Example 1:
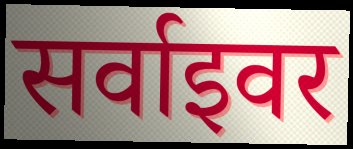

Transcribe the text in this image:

सर्वाइवर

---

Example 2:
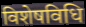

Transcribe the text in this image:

विशेषविधि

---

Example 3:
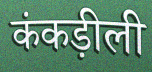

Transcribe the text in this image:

कंकड़ीली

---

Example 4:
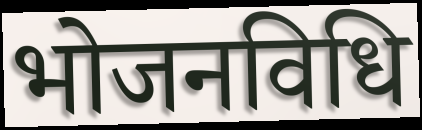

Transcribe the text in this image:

भोजनविधि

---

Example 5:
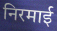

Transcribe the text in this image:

निरमाई